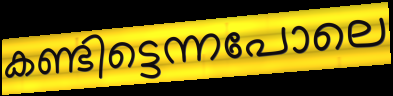
കണ്ടിട്ടെന്നപോലെ